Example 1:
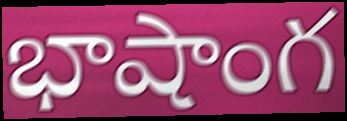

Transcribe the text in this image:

భాషాంగ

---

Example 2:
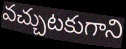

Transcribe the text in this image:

వచ్చుటకుగాని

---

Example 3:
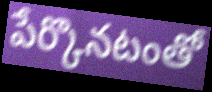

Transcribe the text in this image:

పేర్కొనటంతో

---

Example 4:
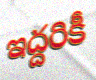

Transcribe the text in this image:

ఇద్దరికీ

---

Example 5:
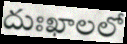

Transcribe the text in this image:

దుఃఖాలలో